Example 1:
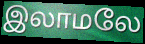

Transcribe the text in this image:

இலாமலே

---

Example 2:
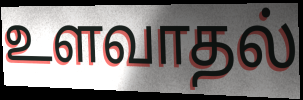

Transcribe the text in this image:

உளவாதல்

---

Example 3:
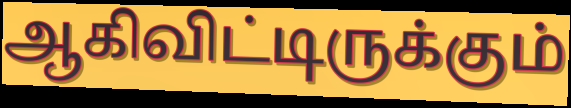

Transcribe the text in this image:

ஆகிவிட்டிருக்கும்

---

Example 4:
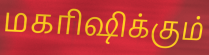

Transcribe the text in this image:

மகரிஷிக்கும்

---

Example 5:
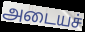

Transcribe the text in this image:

அடையச்